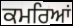
ਕਮਰਿਆਂ